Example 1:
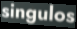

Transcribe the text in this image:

singulos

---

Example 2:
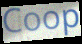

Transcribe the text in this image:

Coop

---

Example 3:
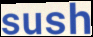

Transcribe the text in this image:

sush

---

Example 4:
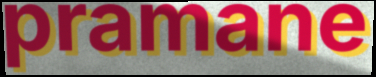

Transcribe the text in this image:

pramane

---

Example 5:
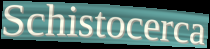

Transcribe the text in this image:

Schistocerca